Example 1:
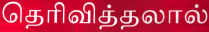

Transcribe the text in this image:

தெரிவித்தலால்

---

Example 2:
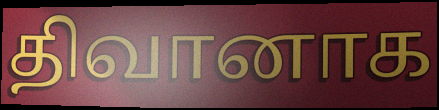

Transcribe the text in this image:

திவானாக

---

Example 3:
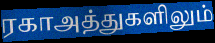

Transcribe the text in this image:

ரகாஅத்துகளிலும்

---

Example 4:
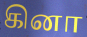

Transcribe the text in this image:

கினா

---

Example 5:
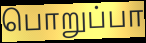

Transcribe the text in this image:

பொறுப்பா